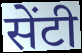
सेंटी